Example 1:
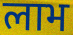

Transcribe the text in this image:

लाभ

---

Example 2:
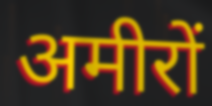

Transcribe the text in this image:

अमीरों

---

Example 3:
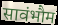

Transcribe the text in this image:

सावंभौम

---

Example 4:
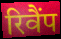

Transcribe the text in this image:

रिवैंप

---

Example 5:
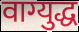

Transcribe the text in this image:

वाग्युद्ध